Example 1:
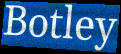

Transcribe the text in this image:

Botley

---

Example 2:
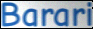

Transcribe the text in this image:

Barari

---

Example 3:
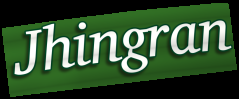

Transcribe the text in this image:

Jhingran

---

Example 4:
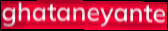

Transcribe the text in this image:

ghataneyante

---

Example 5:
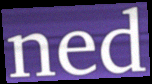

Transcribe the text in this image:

ned